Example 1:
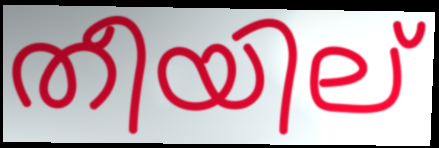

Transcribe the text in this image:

തീയില്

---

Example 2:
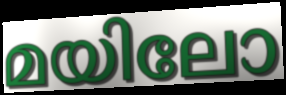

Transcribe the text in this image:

മയിലോ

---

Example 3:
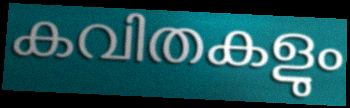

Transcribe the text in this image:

കവിതകളും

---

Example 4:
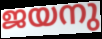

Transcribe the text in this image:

ജയനു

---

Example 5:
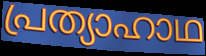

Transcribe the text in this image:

പ്രത്യാഹാഥ